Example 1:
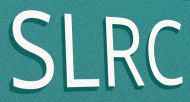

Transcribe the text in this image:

SLRC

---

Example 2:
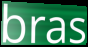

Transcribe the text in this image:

bras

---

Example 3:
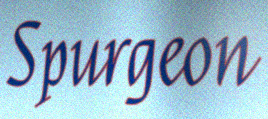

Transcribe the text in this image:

Spurgeon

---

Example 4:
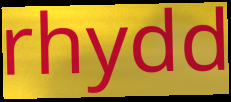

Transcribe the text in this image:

rhydd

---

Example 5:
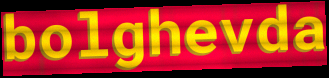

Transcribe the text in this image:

bolghevda